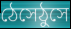
ঠেসেঠুসে